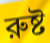
রুষ্ট